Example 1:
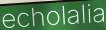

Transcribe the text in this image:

echolalia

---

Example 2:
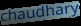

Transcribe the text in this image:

chaudhary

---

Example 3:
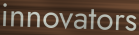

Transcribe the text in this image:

innovators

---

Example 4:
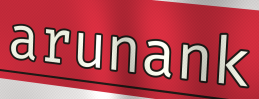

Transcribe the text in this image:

arunank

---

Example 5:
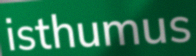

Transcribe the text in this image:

isthumus